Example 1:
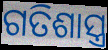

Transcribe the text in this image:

ଗତିଶାସ୍ତ୍ର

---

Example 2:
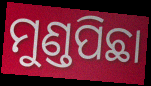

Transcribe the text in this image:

ମୁଣ୍ଡପିଛା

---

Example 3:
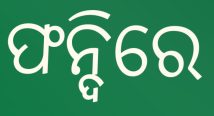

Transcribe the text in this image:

ଫନ୍ଦିରେ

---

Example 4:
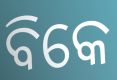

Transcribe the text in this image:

ବିକେ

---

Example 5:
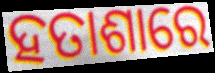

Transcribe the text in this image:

ହତାଶାରେ